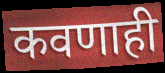
कवणाही